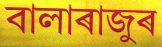
বালাৰাজুৰ